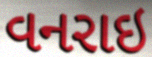
વનરાઇ